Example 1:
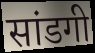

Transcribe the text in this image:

सांडगी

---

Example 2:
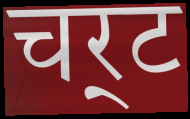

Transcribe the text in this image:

चर्ट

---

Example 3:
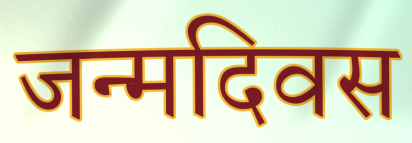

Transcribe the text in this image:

जन्मदिवस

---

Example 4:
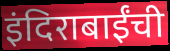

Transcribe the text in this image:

इंदिराबाईंची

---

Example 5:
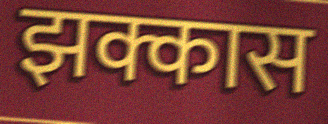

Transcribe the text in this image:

झक्कास